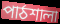
পাঠশালা